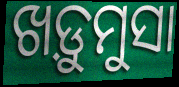
ଖଡ଼ୁମୁସା